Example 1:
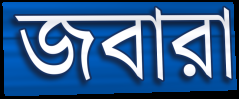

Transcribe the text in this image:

জবারা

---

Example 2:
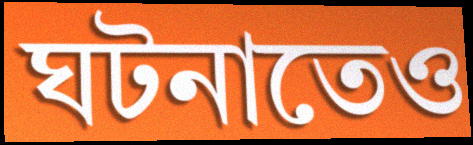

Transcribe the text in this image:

ঘটনাতেও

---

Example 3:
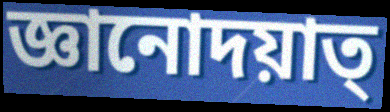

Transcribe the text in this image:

জ্ঞানোদয়াত্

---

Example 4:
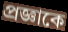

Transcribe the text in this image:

প্রজ্ঞাকে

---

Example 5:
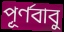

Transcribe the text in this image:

পূর্ণবাবু